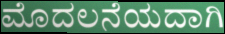
ಮೊದಲನೆಯದಾಗಿ